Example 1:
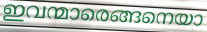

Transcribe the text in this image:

ഇവന്മാരെങ്ങനെയാ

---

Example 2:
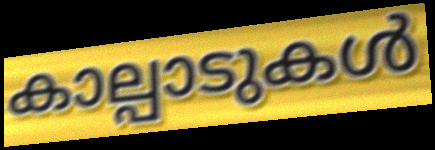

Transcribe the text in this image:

കാല്പാടുകൾ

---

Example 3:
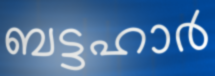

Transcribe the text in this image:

ബട്ടഹാർ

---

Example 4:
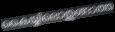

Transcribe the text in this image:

കൈയ്യിലൊതുങ്ങാത്ത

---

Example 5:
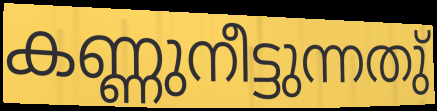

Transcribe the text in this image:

കണ്ണുനീട്ടുന്നതു്